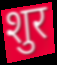
शुर